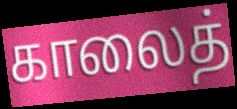
காலைத்